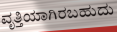
ವೃತ್ತಿಯಾಗಿರಬಹುದು